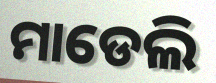
ମାଡେଲି